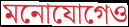
মনোযোগেও